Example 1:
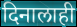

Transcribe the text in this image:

दिनालाही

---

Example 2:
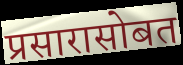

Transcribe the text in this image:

प्रसारासोबत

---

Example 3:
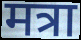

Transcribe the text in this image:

मत्रा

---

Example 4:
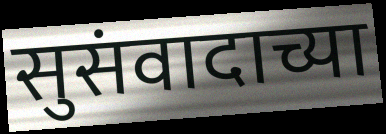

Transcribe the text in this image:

सुसंवादाच्या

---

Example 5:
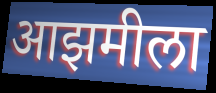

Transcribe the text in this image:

आझमीला